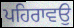
ਪਹਿਰਾਵਉ